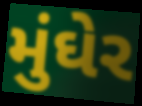
મુંઘેર